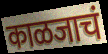
काळजाचं